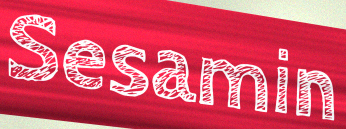
Sesamin